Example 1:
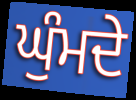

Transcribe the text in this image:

ਘੁੰਮਦੇ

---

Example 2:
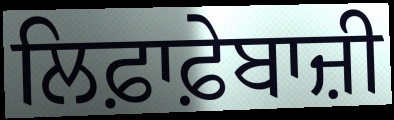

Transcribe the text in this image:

ਲਿਫ਼ਾਫ਼ੇਬਾਜ਼ੀ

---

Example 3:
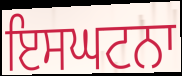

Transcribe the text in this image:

ਇਸਘਟਨਾ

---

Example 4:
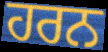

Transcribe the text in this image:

ਹਰਨ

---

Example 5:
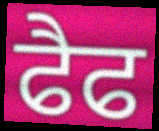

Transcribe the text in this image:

ਫੈਫ